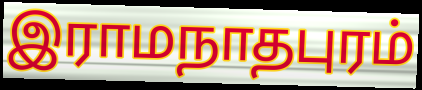
இராமநாதபுரம்